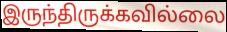
இருந்திருக்கவில்லை